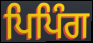
ਪਿਪਿੰਗ